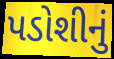
પડોશીનું